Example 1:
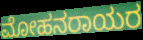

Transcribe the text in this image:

ಮೋಹನರಾಯರ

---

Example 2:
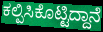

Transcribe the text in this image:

ಕಲ್ಪಿಸಿಕೊಟ್ಟಿದ್ದಾನೆ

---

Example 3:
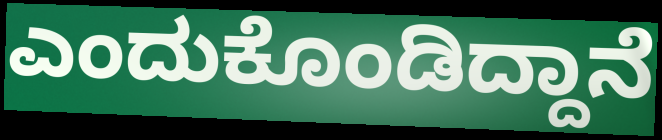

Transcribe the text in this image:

ಎಂದುಕೊಂಡಿದ್ದಾನೆ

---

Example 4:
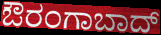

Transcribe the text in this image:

ಔರಂಗಾಬಾದ್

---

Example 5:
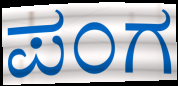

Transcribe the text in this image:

ಪಂಗ